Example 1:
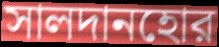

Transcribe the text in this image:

সালদানহোর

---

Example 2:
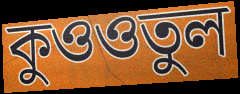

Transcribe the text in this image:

কুওওতুল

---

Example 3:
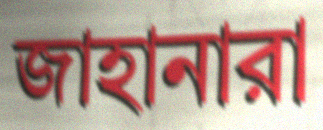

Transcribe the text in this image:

জাহানারা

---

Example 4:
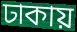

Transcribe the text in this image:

ঢাকায়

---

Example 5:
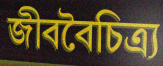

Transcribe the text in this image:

জীববৈচিত্র্য